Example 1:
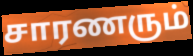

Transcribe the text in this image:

சாரணரும்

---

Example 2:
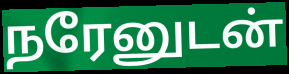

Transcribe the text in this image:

நரேனுடன்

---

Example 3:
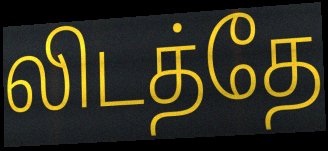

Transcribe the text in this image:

லிடத்தே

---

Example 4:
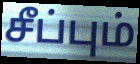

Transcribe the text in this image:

சீப்பும்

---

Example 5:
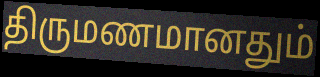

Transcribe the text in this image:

திருமணமானதும்